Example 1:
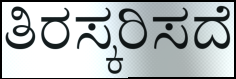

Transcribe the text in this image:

ತಿರಸ್ಕರಿಸದೆ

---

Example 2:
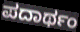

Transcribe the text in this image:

ಪದಾರ್ಥಂ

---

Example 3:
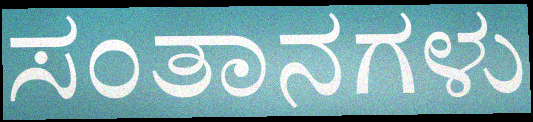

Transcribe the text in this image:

ಸಂತಾನಗಳು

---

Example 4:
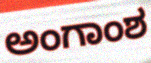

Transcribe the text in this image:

ಅಂಗಾಂಶ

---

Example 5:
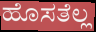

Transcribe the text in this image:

ಹೊಸತೆಲ್ಲ